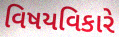
વિષયવિકારે